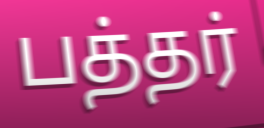
பத்தர்